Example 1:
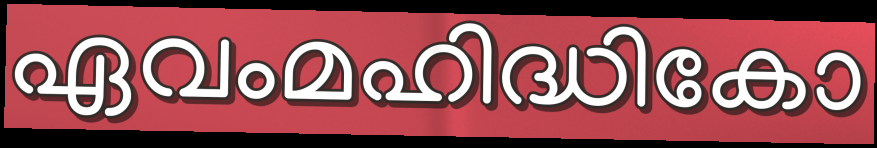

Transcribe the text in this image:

ഏവംമഹിദ്ധികോ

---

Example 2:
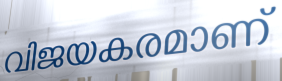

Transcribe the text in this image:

വിജയകരമാണ്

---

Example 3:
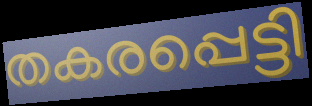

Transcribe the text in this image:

തകരപ്പെട്ടി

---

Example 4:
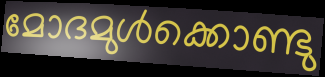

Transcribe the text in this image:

മോദമുൾക്കൊണ്ടു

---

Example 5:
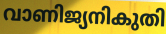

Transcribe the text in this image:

വാണിജ്യനികുതി